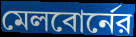
মেলবোর্নের